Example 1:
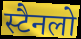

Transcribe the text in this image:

स्टैनलो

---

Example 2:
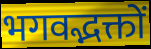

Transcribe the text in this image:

भगवद्भक्तों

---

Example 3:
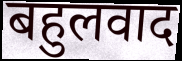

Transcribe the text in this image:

बहुलवाद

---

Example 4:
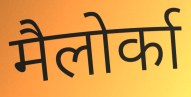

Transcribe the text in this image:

मैलोर्का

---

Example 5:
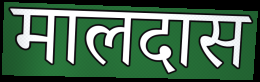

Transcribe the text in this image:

मालदास